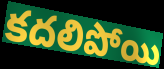
కదలిపోయి